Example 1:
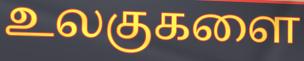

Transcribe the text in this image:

உலகுகளை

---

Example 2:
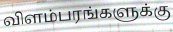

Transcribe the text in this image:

விளம்பரங்களுக்கு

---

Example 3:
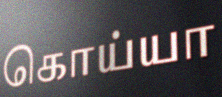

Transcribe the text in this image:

கொய்யா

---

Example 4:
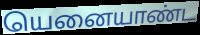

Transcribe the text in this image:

யெனையாண்ட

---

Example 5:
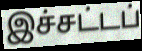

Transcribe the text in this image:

இச்சட்டப்